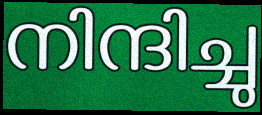
നിന്ദിച്ചു